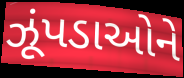
ઝૂંપડાઓને